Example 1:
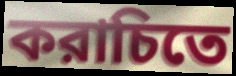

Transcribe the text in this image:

করাচিতে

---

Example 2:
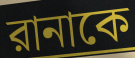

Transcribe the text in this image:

রানাকে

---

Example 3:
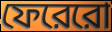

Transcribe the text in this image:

ফেরেরো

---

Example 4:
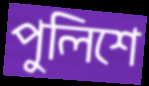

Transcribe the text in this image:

পুলিশে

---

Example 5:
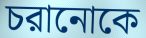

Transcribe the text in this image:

চরানোকে